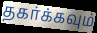
தகர்க்கவும்